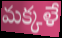
మక్కళే